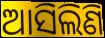
ଆସିଲିଣି